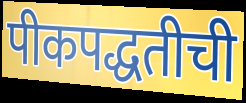
पीकपद्धतीची